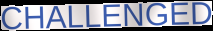
CHALLENGED